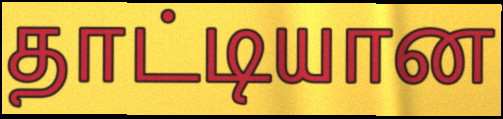
தாட்டியான